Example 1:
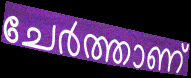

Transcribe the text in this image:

ചേർത്താണ്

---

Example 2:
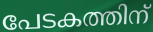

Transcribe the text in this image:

പേടകത്തിന്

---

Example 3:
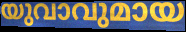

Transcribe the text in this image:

യുവാവുമായ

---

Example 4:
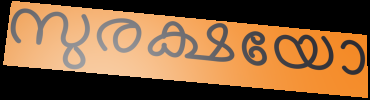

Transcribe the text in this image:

സുരക്ഷയോ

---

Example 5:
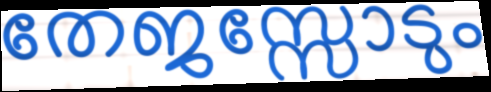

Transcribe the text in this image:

തേജസ്സോടും